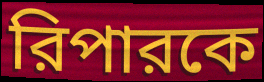
রিপারকে